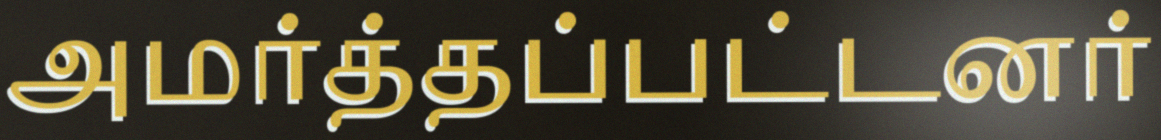
அமர்த்தப்பட்டனர்